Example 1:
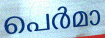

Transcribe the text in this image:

പെർമാ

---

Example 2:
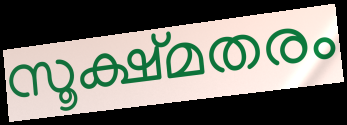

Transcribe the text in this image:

സൂക്ഷ്മതരം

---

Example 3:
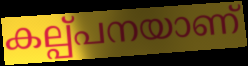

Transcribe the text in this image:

കല്പ്പനയാണ്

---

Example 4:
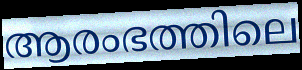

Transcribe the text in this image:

ആരംഭത്തിലെ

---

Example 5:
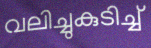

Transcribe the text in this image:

വലിച്ചുകുടിച്ച്